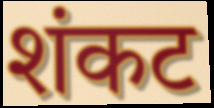
शंकट